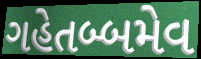
ગહેતબ્બમેવ